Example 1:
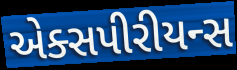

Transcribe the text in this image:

એક્સપીરીયન્સ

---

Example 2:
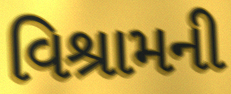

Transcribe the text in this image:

વિશ્રામની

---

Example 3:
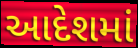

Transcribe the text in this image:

આદેશમાં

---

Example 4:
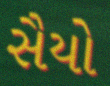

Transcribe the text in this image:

સૈયો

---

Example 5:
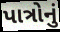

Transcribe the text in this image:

પાત્રોનું